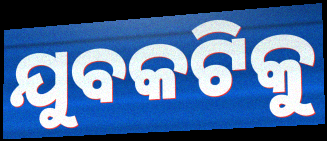
ଯୁବକଟିକୁ